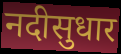
नदीसुधार